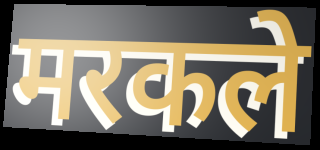
मरकले